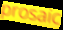
prosaic